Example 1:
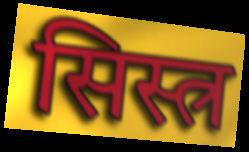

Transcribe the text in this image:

सिस्त्र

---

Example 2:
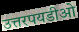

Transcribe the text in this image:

उत्तरपयडीओ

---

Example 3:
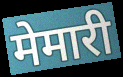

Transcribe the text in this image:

मेमारी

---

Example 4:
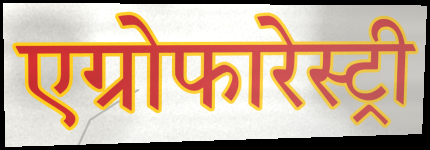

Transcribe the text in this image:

एग्रोफारेस्ट्री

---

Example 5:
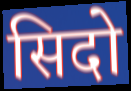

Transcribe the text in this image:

सिदो